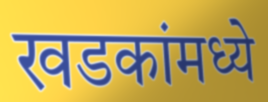
खडकांमध्ये